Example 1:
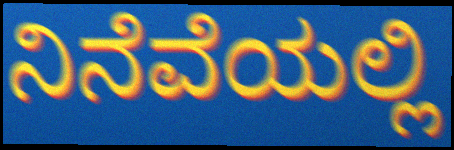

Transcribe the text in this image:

ನಿನೆವೆಯಲ್ಲಿ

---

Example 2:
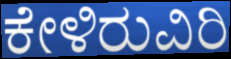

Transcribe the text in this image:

ಕೇಳಿರುವಿರಿ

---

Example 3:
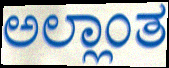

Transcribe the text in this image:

ಅಲ್ಲಾಂತ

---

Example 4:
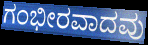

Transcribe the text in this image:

ಗಂಭೀರವಾದವು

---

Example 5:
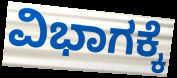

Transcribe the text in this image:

ವಿಭಾಗಕ್ಕೆ